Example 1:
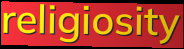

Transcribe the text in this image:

religiosity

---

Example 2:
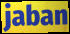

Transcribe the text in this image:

jaban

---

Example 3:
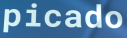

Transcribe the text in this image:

picado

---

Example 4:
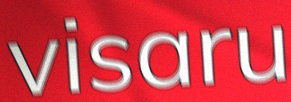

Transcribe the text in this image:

visaru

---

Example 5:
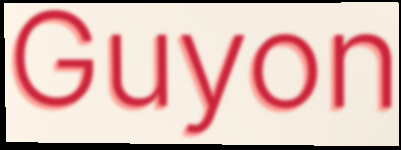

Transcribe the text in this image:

Guyon